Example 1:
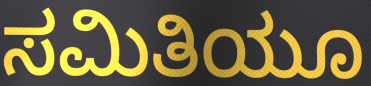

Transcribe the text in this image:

ಸಮಿತಿಯೂ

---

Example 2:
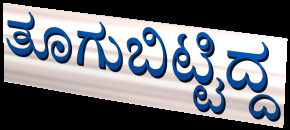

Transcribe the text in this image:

ತೂಗುಬಿಟ್ಟಿದ್ದ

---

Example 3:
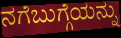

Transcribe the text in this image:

ನಗೆಬುಗ್ಗೆಯನ್ನು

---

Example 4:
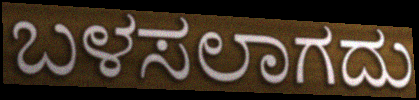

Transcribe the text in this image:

ಬಳಸಲಾಗದು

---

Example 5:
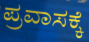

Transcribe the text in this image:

ಪ್ರವಾಸಕ್ಕೆ